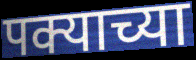
पक्याच्या